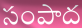
సంపాద